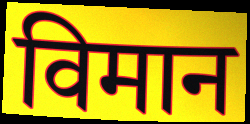
विमान